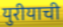
युरीयाची